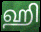
ஹி